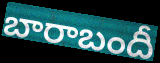
బారాబందీ